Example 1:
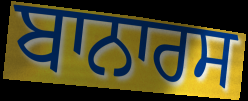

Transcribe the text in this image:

ਬਾਨਾਰਸ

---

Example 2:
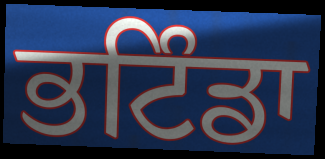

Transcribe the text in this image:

ਭਟਿੰਡਾ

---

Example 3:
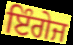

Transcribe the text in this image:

ਇੰਗੇਜ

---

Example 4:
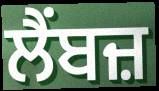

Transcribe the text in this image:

ਲੈਂਬਜ਼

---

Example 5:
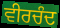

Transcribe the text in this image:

ਵੀਰਚੰਦ